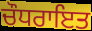
ਚੌਧਰਾਇਤ